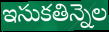
ఇసుకతిన్నెల